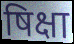
षिक्षा